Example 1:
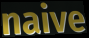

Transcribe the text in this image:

naive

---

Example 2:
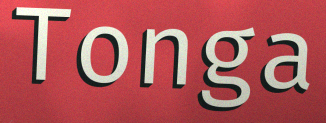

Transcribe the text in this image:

Tonga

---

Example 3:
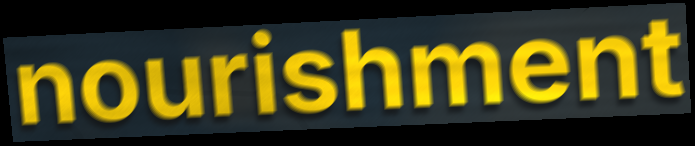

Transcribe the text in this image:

nourishment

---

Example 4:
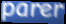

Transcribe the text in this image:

parer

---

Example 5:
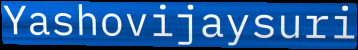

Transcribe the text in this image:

Yashovijaysuri